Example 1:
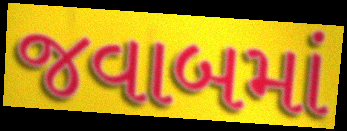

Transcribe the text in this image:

જવાબમાં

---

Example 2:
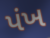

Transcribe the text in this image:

પંખ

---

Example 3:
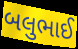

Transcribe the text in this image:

બલુભાઈ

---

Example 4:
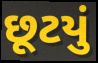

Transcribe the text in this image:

છૂટયું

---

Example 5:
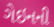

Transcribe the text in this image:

ગેઇનની